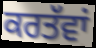
ਕਰਤੱਵਾਂ